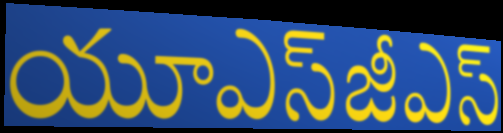
యూఎస్‌జీఎస్